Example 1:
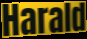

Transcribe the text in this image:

Harald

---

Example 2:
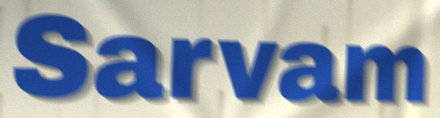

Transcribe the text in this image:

Sarvam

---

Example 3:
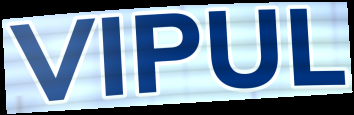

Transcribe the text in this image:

VIPUL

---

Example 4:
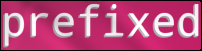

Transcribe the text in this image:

prefixed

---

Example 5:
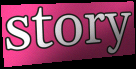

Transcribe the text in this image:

story